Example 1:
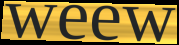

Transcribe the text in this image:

weew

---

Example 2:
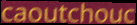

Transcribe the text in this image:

caoutchouc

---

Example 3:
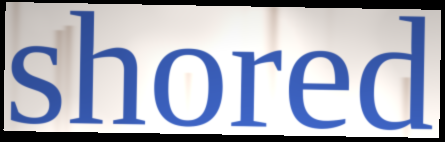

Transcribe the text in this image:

shored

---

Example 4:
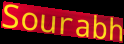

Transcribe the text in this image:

Sourabh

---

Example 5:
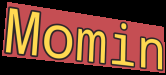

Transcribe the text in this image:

Momin